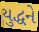
યુદ્ધને